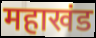
महाखंड